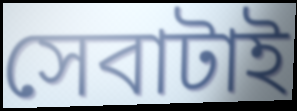
সেবাটাই